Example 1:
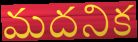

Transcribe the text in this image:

మదనిక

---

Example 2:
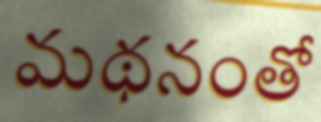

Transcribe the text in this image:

మథనంతో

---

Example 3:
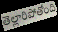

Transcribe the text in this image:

తెల్లారిపోతోంది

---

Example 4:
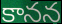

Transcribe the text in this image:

కానన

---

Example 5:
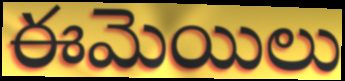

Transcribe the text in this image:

ఈమెయిలు